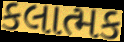
કલાત્મક